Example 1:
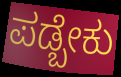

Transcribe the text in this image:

ಪಡ್ಬೇಕು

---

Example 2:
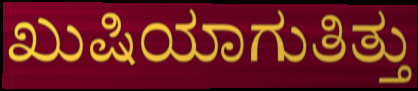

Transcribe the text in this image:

ಖುಷಿಯಾಗುತಿತ್ತು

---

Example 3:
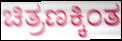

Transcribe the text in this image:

ಚಿತ್ರಣಕ್ಕಿಂತ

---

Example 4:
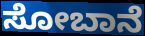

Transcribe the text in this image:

ಸೋಬಾನೆ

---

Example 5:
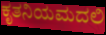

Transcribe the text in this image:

ಕೃತನಿಯಮದಲಿ